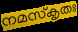
നമസ്കൃതഃ